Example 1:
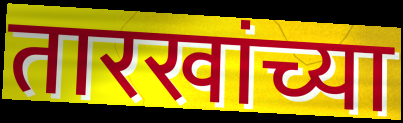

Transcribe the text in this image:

तारखांच्या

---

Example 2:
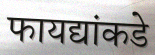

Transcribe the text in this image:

फायद्यांकडे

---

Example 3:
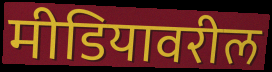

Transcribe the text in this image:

मीडियावरील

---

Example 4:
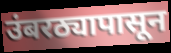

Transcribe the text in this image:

उंबरठ्यापासून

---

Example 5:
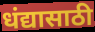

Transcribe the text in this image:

धंद्यासाठी